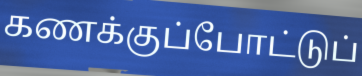
கணக்குப்போட்டுப்